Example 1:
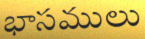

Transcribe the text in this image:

భాసములు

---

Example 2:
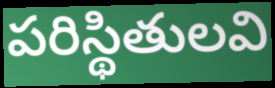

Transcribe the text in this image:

పరిస్థితులవి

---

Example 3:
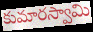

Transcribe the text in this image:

కుమారస్వామి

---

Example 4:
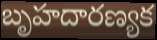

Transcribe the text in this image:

బృహదారణ్యక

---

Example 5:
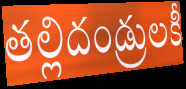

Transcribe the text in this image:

తల్లిదండ్రులకీ